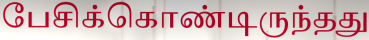
பேசிக்கொண்டிருந்தது